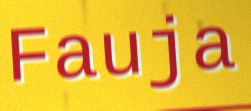
Fauja